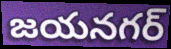
జయనగర్